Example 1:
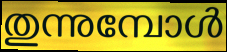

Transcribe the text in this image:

തുന്നുമ്പോൾ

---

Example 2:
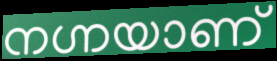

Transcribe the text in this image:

നഗ്നയാണ്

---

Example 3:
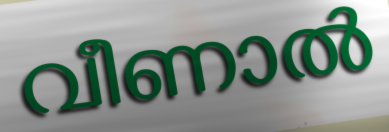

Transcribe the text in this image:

വീണാൽ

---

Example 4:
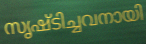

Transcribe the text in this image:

സൃഷ്ടിച്ചവനായി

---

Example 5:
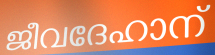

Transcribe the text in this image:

ജീവദേഹാന്